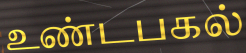
உண்டபகல்